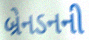
બ્રેનડનની